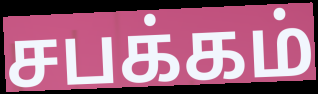
சபக்கம்